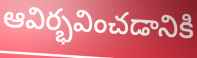
ఆవిర్భవించడానికి